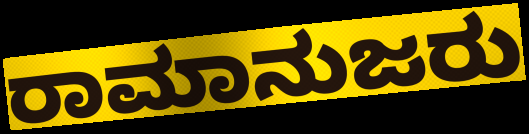
ರಾಮಾನುಜರು